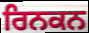
ਰਿਨਕਨ